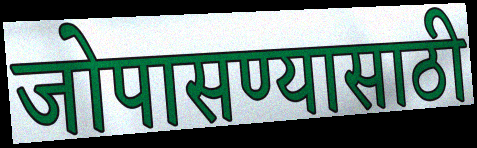
जोपासण्यासाठी